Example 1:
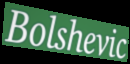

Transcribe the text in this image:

Bolshevic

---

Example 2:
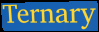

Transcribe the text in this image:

Ternary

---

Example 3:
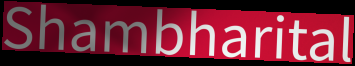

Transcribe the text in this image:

Shambharital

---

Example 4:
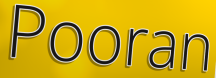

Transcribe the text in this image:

Pooran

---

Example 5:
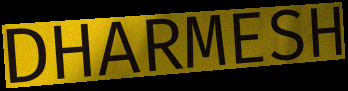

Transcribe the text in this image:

DHARMESH